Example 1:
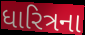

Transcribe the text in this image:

ધારિત્રના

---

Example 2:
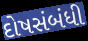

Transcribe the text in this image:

દોષસંબંધી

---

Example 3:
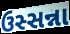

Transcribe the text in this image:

ઉસ્સન્ના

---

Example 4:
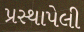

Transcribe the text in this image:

પ્રસ્થાપેલી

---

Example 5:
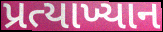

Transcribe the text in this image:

પ્રત્યાખ્યાન